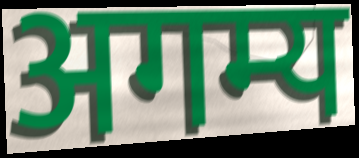
अगम्य